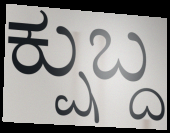
ಕ್ಷುಬ್ದ